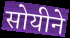
सोयीने